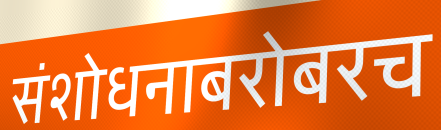
संशोधनाबरोबरच